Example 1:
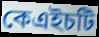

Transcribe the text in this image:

কেএইচটি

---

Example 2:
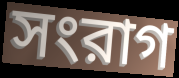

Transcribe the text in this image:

সংরাগ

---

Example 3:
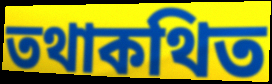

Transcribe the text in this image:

তথাকথিত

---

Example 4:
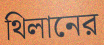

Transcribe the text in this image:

থিলানের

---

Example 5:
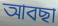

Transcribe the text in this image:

আবছা